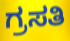
ಗ್ರಸತಿ